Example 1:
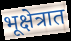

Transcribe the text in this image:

भूक्षेत्रात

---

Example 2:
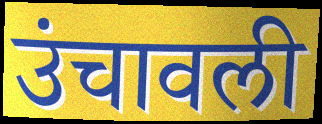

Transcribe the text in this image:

उंचावली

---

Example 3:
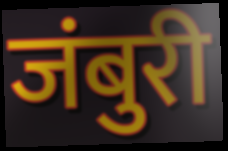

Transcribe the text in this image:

जंबुरी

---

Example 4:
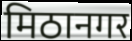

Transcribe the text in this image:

मिठानगर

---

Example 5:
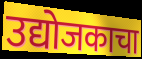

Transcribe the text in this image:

उद्योजकाचा